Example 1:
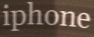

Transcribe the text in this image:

iphone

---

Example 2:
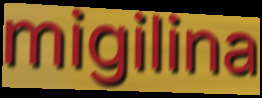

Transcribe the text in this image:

migilina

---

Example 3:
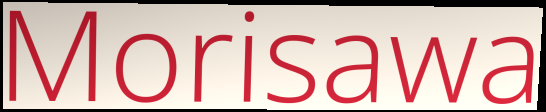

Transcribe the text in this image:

Morisawa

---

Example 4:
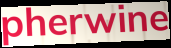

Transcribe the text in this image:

pherwine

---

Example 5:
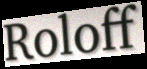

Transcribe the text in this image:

Roloff